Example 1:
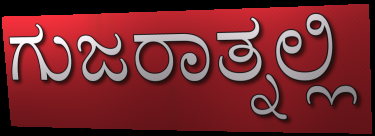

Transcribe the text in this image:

ಗುಜರಾತ್ನಲ್ಲಿ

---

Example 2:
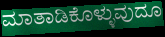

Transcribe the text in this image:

ಮಾತಾಡಿಕೊಳ್ಳುವುದೂ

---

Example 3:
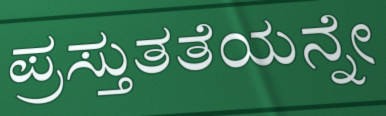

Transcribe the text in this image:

ಪ್ರಸ್ತುತತೆಯನ್ನೇ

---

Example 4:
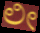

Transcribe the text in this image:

ಲೀ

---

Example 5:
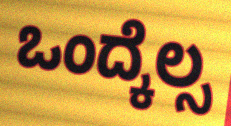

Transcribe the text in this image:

ಒಂದ್ಕೆಲ್ಸ